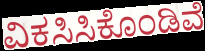
ವಿಕಸಿಸಿಕೊಂಡಿವೆ